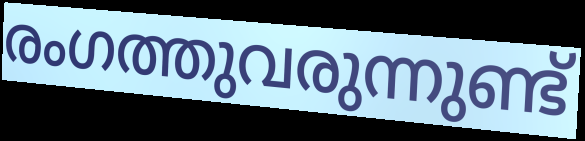
രംഗത്തുവരുന്നുണ്ട്